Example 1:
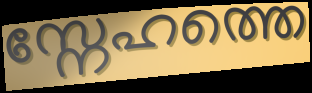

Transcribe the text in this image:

സ്നേഹത്തെ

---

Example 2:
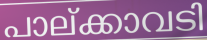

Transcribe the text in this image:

പാല്ക്കാവടി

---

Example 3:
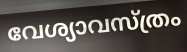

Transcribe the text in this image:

വേശ്യാവസ്ത്രം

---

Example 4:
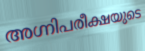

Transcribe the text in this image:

അഗ്നിപരീക്ഷയുടെ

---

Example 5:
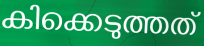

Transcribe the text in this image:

കിക്കെടുത്തത്